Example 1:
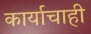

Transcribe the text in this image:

कार्याचाही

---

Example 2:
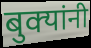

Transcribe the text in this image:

बुक्यांनी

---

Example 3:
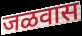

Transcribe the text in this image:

जळवास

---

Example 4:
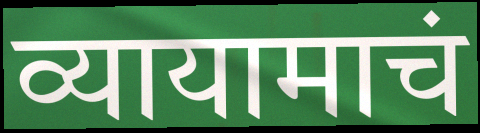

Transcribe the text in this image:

व्यायामाचं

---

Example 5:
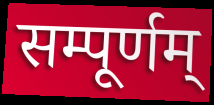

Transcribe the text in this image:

सम्पूर्णम्